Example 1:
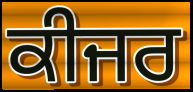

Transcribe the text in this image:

ਕੀਜਰ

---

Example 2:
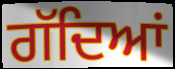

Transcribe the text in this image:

ਗੱਦਿਆਂ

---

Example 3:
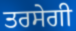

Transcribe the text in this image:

ਤਰਸੇਗੀ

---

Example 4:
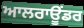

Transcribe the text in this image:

ਆਲਰਾਊਂਡਰ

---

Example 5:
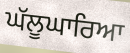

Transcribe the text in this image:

ਘੱਲੂਘਾਰਿਆ